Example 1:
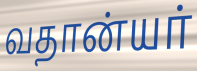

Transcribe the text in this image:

வதான்யர்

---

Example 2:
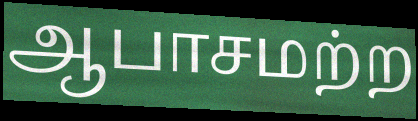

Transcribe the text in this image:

ஆபாசமற்ற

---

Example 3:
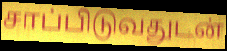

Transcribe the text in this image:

சாப்பிடுவதுடன்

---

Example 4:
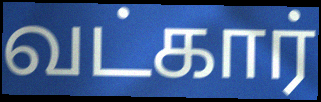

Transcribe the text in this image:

வட்கார்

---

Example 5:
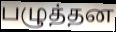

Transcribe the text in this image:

பழுத்தன